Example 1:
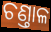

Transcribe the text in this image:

ଚଣ୍ତାଳ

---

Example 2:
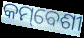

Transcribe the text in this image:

କମ୍‌ବେଶୀ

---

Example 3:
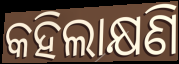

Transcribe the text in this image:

କହିଲାକ୍ଷଣି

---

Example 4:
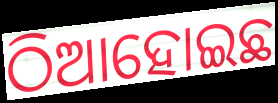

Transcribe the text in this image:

ଠିଆହୋଇଛ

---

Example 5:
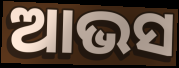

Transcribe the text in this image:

ଆଭସ